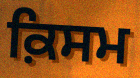
ਕ਼ਿਸਮ